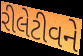
રીલેટીવને